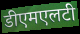
डीएमएलटी